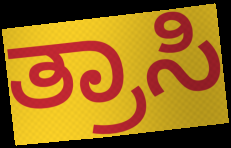
ತ್ರಾಸಿ